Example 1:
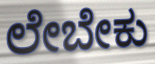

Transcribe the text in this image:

ಲೇಬೇಕು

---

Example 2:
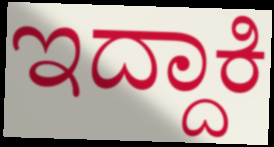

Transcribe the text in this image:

ಇದ್ದಾಕಿ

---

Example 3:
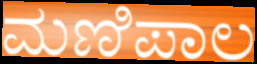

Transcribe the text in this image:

ಮಣಿಪಾಲ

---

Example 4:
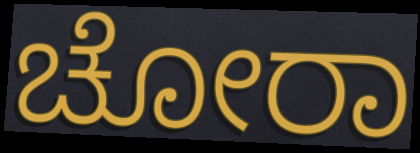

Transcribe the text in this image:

ಚೋರಾ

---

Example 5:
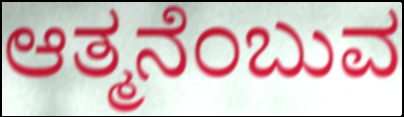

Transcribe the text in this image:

ಆತ್ಮನೆಂಬುವ